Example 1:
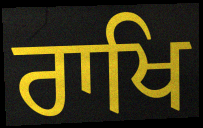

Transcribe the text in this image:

ਰਾਖਿ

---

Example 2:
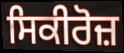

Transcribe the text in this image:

ਸਿਕੀਰੋਜ਼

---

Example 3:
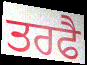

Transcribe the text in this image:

ਤਰਫੈ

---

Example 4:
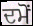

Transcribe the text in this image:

ਦਮੋਂ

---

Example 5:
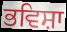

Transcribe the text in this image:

ਭਵਿਸ਼ਾ